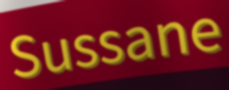
Sussane